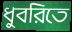
ধুবরিতে